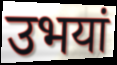
उभयां